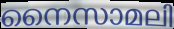
നൈസാമലി